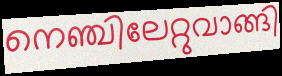
നെഞ്ചിലേറ്റുവാങ്ങി